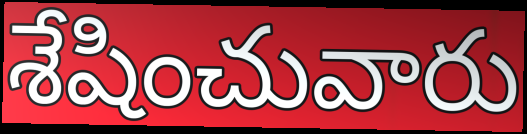
శేషించువారు